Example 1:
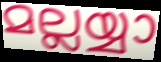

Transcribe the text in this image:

മല്ലയ്യാ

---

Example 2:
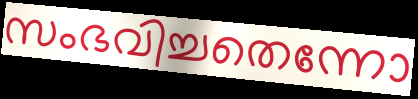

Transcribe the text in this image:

സംഭവിച്ചതെന്നോ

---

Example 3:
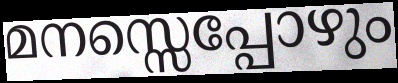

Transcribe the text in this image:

മനസ്സെപ്പോഴും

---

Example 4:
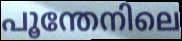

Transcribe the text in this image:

പൂന്തേനിലെ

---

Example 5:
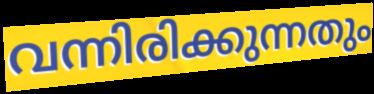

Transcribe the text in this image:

വന്നിരിക്കുന്നതും